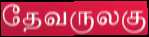
தேவருலகு